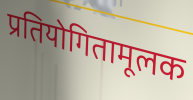
प्रतियोगितामूलक